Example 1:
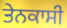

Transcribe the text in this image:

ਤੇਨਕਾਸੀ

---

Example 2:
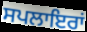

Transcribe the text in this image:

ਸਪਲਾਇਰਾਂ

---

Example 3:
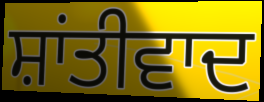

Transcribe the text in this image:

ਸ਼ਾਂਤੀਵਾਦ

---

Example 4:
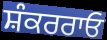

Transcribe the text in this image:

ਸ਼ੰਕਰਰਾਓ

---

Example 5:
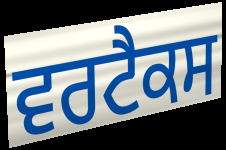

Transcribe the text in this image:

ਵਰਟੈਕਸ